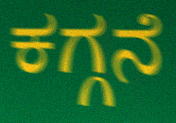
ಕಗ್ಗನೆ